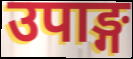
उपाङ्ग